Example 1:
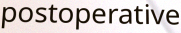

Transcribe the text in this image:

postoperative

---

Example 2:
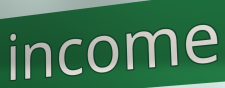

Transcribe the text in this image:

income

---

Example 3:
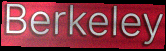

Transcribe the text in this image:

Berkeley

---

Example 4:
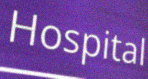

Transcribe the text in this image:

Hospital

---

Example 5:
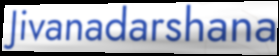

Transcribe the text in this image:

Jivanadarshana